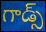
గాడ్స్